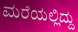
ಮರೆಯಲ್ಲಿದ್ದು